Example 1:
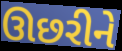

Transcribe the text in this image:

ઊછરીને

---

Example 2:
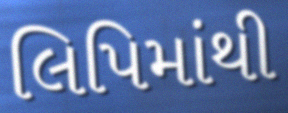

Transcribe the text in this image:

લિપિમાંથી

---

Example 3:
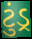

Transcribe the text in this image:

ટુંડ્ર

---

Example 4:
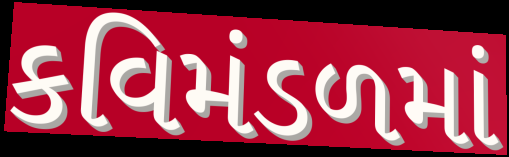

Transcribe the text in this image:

કવિમંડળમાં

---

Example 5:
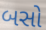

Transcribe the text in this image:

બસો